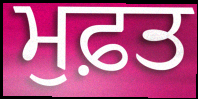
ਮੁਫ਼ਤ